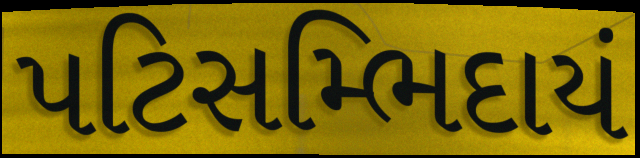
પટિસમ્ભિદાયં